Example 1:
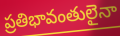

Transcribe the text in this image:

ప్రతిభావంతులైనా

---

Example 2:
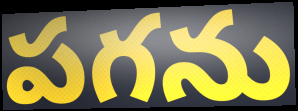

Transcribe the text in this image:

పగను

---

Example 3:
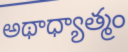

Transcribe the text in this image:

అథాధ్యాత్మం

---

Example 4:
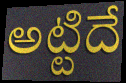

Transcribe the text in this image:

అట్టిదే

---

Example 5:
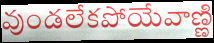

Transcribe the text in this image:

వుండలేకపోయేవాణ్ణి